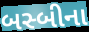
બસ્બીના